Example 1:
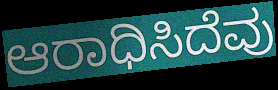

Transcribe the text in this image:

ಆರಾಧಿಸಿದೆವು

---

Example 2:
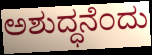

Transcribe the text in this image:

ಅಶುದ್ಧನೆಂದು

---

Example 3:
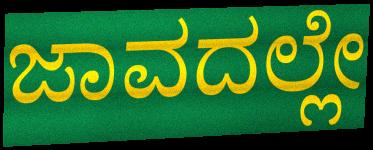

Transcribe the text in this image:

ಜಾವದಲ್ಲೇ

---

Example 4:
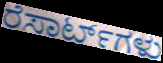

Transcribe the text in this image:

ರೆಸಾರ್ಟ್‌ಗಳು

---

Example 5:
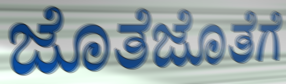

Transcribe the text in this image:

ಜೊತೆಜೊತೆಗೆ